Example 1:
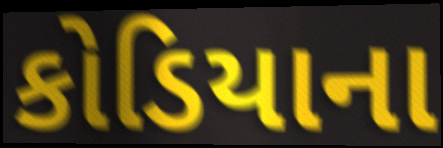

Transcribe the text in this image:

કોડિયાના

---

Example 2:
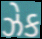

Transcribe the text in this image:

ઝેક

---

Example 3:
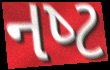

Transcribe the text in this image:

નષ્‍ટ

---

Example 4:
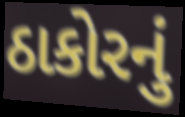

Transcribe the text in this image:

ઠાકોરનું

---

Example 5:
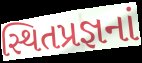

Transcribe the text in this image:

સ્થિતપ્રજ્ઞનાં